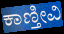
ಕಾಣ್ತೀವಿ